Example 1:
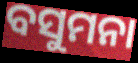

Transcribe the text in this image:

ବସୁମନା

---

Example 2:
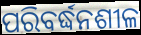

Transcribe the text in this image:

ପରିବର୍ଦ୍ଧନଶୀଳ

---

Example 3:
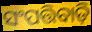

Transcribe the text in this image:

ସଂପତ୍ତିବାଡ଼ି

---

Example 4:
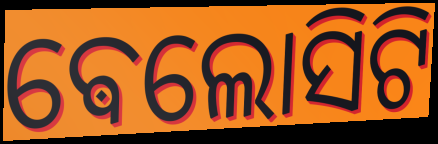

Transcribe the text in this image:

ଵେଲୋସିଟି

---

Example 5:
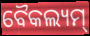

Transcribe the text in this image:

ବୈକଲ୍ୟମ୍